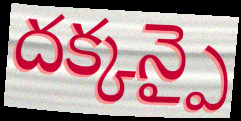
దక్కన్పై